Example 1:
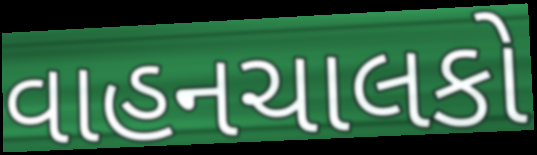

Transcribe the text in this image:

વાહનચાલકો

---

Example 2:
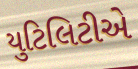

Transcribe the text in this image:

યુટિલિટીએ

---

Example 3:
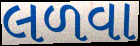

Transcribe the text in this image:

લળવા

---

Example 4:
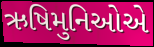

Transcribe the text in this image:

ઋષિમુનિઓએ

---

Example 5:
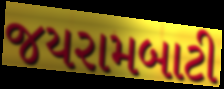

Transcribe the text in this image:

જયરામબાટી